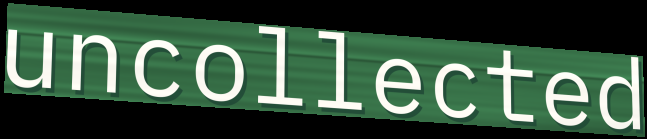
uncollected